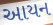
આયન